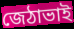
জেঠাভাই